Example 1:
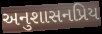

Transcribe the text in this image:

અનુશાસનપ્રિય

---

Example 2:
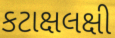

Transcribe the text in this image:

કટાક્ષલક્ષી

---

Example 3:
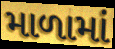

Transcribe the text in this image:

માળામાં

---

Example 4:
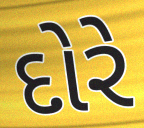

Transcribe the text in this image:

દોરે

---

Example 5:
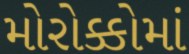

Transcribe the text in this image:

મોરોક્કોમાં